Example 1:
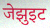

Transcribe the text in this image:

जेझुइट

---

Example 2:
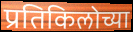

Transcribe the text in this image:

प्रतिकिलोच्या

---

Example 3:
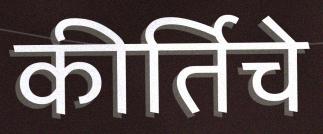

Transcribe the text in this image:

कीर्तिचे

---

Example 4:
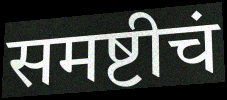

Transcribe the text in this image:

समष्टीचं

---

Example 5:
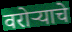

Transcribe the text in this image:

वरोऱ्याचे